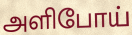
அளிபோய்